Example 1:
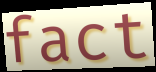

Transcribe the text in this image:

fact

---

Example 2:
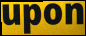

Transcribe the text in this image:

upon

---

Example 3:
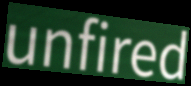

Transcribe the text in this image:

unfired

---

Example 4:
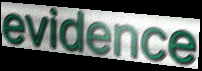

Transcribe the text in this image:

evidence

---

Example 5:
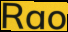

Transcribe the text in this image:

Rao